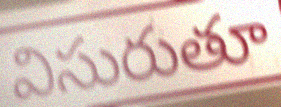
విసురుతూ